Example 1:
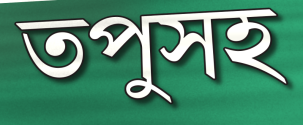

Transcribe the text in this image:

তপুসহ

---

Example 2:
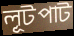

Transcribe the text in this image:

লূটপাট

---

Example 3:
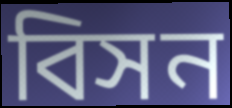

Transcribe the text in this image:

বিসন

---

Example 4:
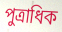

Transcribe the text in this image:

পুত্রাধিক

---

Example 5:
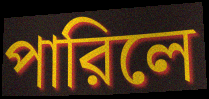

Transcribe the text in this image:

পারিলে